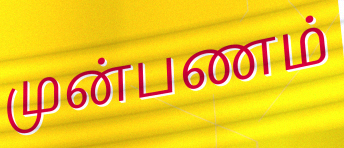
முன்பணம்